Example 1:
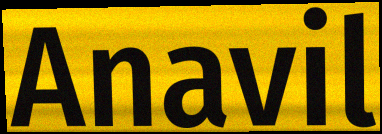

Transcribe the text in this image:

Anavil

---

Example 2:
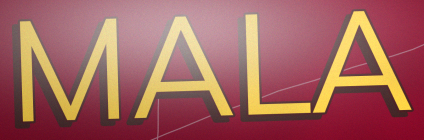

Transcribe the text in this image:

MALA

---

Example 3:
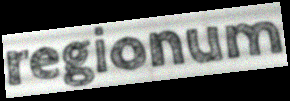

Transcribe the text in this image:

regionum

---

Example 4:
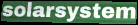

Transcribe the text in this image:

solarsystem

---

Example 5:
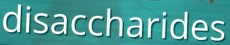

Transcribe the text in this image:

disaccharides